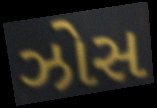
ઝોસ